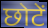
छोटें